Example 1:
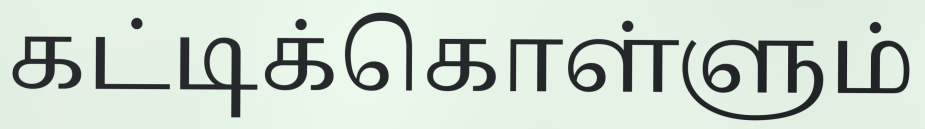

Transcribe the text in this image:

கட்டிக்கொள்ளும்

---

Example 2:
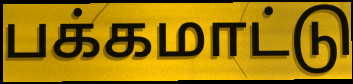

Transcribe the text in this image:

பக்கமாட்டு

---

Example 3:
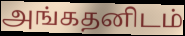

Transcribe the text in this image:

அங்கதனிடம்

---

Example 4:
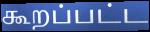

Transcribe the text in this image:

கூறப்பட்ட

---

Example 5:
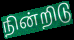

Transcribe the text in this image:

நின்றிடு